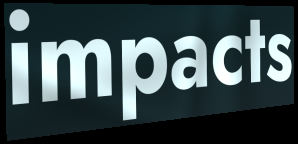
impacts